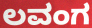
ಲವಂಗ